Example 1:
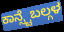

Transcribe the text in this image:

ಕಾನ್ಸ್ಟೆಬಲ್ಗಳ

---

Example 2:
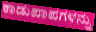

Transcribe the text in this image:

ಕಾಡುಪಾಪಗಳನ್ನು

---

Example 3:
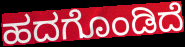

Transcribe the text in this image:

ಹದಗೊಂಡಿದೆ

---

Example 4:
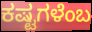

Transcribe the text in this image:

ಕಷ್ಟಗಳೆಂಬ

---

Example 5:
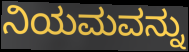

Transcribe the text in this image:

ನಿಯಮವನ್ನು